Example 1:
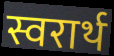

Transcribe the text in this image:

स्वरार्थ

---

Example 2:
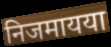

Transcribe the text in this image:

निजमायया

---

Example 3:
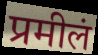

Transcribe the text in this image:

प्रमीलं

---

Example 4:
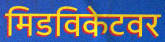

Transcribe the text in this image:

मिडविकेटवर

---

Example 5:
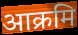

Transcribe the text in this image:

आक्रमि